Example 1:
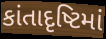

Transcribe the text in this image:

કાંતાદૃષ્ટિમાં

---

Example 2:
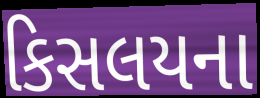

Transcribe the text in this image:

કિસલયના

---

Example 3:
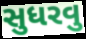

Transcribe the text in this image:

સુધરવુ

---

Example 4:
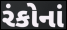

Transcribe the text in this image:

રંકોનાં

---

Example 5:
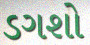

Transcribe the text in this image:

ડગશો